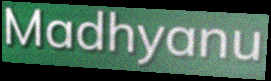
Madhyanu